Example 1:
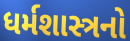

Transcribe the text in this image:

ધર્મશાસ્ત્રનો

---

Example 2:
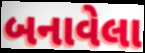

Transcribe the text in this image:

બનાવેલા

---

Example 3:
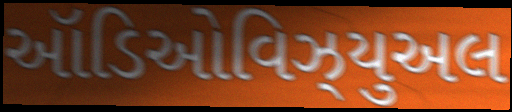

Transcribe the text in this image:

ઑડિઓવિઝ્યુઅલ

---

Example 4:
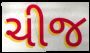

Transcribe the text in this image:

ચીજ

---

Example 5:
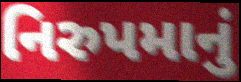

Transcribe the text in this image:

નિરુપમાનું